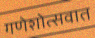
गणेशोत्सवात